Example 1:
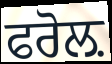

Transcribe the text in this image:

ਫਰੋਲ਼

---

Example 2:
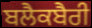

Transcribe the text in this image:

ਬਲੈਕਬੈਰੀ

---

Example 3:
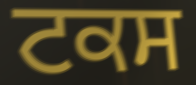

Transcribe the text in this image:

ਟਕਸ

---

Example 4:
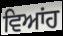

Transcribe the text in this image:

ਵਿਆਂਹ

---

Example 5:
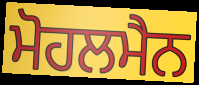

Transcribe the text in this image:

ਮੋਹਲਮੈਨ